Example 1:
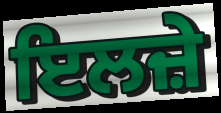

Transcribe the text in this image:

ਇਲਜ਼ੇ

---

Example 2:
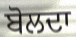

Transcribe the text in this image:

ਬੋਲਦਾ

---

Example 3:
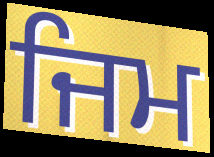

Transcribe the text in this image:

ਜਿਮ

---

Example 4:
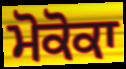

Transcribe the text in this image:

ਮੋਕੋਕਾ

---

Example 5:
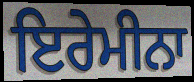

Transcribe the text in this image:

ਇਰੇਮੀਨਾ